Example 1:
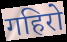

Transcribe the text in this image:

गहिरो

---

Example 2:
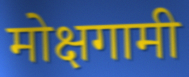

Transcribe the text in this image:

मोक्षगामी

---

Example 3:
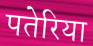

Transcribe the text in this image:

पतेरिया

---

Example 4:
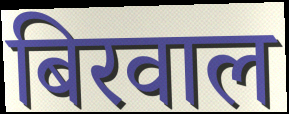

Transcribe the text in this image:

बिरवाल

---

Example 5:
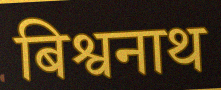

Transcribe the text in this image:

बिश्वनाथ